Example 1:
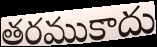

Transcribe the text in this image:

తరముకాదు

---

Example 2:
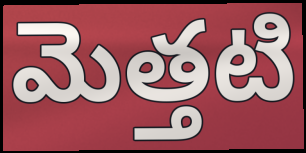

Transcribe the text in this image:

మెత్తటి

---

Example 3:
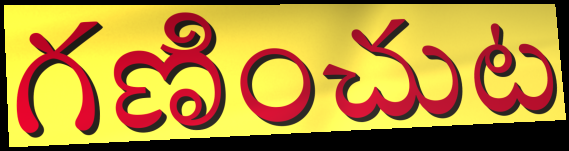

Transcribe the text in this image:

గణించుట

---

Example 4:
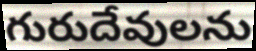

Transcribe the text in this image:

గురుదేవులను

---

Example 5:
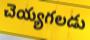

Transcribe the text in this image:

చెయ్యగలడు